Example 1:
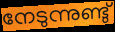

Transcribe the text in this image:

നേടുന്നുണ്ടു്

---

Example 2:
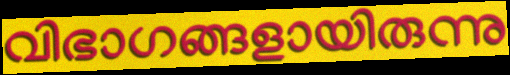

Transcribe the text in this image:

വിഭാഗങ്ങളായിരുന്നു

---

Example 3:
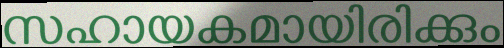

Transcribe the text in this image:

സഹായകമായിരിക്കും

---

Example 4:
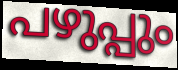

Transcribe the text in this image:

പഴുപ്പും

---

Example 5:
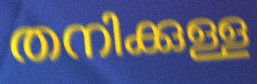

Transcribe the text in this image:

തനിക്കുള്ള